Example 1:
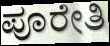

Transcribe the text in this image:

ಪೂರೇತಿ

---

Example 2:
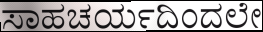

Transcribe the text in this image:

ಸಾಹಚರ್ಯದಿಂದಲೇ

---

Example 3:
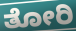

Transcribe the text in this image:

ತೋರಿ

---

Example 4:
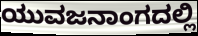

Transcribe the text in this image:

ಯುವಜನಾಂಗದಲ್ಲಿ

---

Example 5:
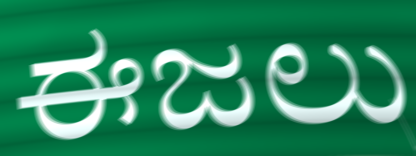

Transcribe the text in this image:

ಈಜಲು